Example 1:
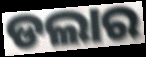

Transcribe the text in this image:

ଡଲାର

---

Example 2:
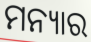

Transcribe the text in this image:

ମନ୍ୟାର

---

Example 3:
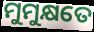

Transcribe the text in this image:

ମୁମୁକ୍ଷତେ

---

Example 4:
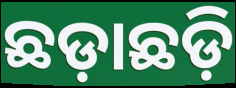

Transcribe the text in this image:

ଛଡ଼ାଛଡ଼ି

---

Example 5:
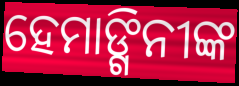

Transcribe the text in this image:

ହେମାଙ୍ଗିନୀଙ୍କ